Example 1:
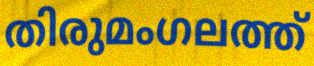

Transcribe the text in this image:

തിരുമംഗലത്ത്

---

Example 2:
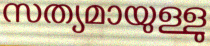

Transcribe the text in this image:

സത്യമായുള്ളു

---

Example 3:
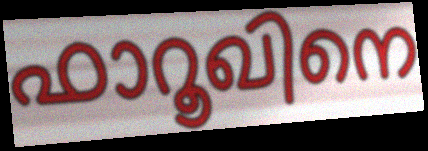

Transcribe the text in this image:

ഫാറൂഖിനെ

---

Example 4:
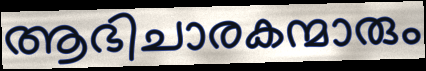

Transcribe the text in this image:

ആഭിചാരകന്മാരും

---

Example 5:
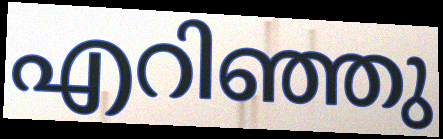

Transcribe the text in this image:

എറിഞ്ഞു